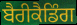
ਬੈਰੀਕੈਡਿੰਗ